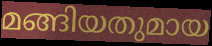
മങ്ങിയതുമായ